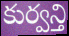
కుర్వన్తి